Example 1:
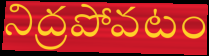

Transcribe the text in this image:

నిద్రపోవటం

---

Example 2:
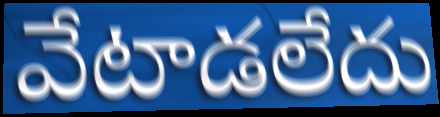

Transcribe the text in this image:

వేటాడలేదు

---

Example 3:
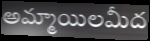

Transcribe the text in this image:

అమ్మాయిలమీద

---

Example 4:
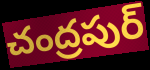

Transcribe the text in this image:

చంద్రపుర్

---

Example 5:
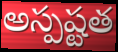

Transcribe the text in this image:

అస్పష్టత